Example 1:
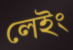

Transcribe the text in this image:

লেইং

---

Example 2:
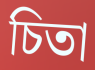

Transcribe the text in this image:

চিতা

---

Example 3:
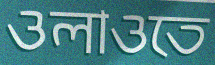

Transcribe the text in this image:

ওলাওতে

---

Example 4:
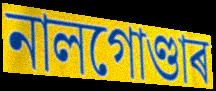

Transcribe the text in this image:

নালগোণ্ডাৰ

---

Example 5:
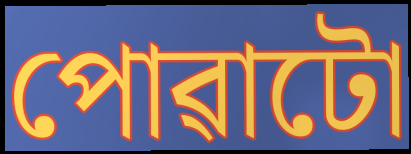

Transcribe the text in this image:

পোৱাটো